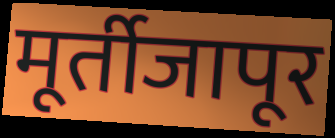
मूर्तीजापूर